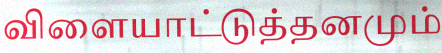
விளையாட்டுத்தனமும்